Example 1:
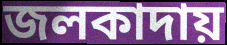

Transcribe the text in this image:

জলকাদায়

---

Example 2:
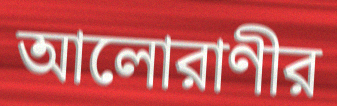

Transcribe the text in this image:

আলোরাণীর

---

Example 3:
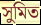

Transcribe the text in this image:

সুমিত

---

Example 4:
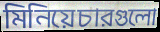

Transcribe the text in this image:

মিনিয়েচারগুলো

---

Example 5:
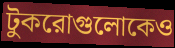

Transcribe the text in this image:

টুকরোগুলোকেও